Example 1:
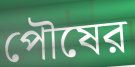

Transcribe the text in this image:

পৌষের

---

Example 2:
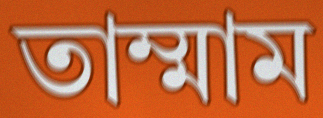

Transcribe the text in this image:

তাম্মাম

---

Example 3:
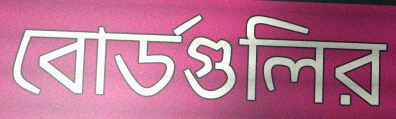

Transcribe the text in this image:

বোর্ডগুলির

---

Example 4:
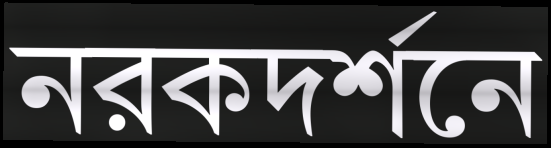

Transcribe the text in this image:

নরকদর্শনে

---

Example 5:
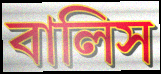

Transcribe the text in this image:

বালিস